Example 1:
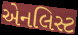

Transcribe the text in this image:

એનલિસ્ટ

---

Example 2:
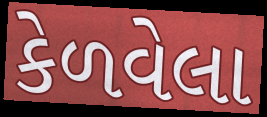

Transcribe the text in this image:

કેળવેલા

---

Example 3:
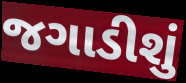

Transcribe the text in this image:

જગાડીશું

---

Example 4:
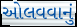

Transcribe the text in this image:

ઓલવવાનું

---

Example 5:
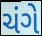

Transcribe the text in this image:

ચંગે